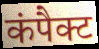
कंपैक्ट